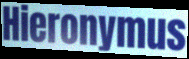
Hieronymus